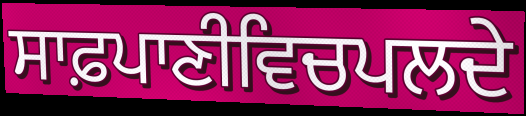
ਸਾਫ਼ਪਾਣੀਵਿਚਪਲਦੇ